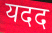
यदद